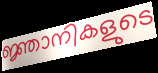
ജ്ഞാനികളുടെ